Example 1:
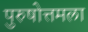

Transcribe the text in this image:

पुरुषोत्तमला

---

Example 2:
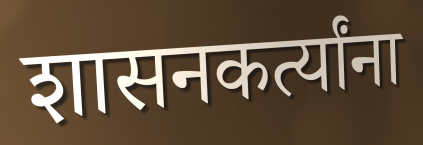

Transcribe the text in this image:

शासनकर्त्यांना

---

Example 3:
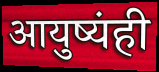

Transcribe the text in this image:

आयुष्यंही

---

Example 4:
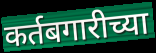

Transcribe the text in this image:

कर्तबगारीच्या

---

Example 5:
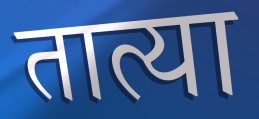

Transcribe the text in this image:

तात्या